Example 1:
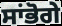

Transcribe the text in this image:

ਸਾਂਭੋਗੇ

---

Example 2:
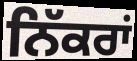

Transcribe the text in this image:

ਨਿੱਕਰਾਂ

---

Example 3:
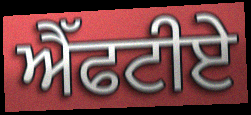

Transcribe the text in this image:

ਐੱਫਟੀਏ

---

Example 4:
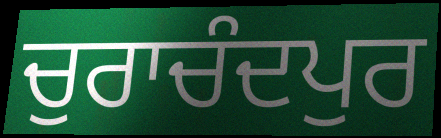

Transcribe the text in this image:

ਚੁਰਾਚੰਦਪੁਰ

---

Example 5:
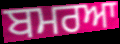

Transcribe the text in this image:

ਬਮਰਆ